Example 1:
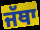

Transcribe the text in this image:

ਜੱਥਾ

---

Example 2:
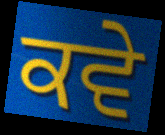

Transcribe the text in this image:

ਕਵੇ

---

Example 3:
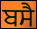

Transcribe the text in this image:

ਬਸੈ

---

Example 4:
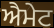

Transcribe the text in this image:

ਐਮੇਟ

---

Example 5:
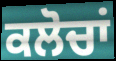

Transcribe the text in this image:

ਕਲੋਚਾਂ